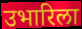
उभारिला